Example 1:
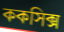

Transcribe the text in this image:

ককসিক্স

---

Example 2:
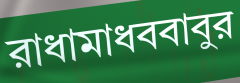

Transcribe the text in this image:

রাধামাধববাবুর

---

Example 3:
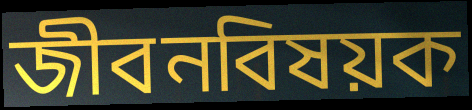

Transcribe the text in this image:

জীবনবিষয়ক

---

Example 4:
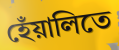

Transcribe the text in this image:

হেঁয়ালিতে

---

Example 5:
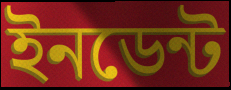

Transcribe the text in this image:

ইনডেন্ট